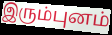
இரும்புனம்